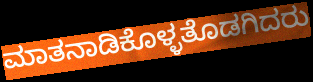
ಮಾತನಾಡಿಕೊಳ್ಳತೊಡಗಿದರು